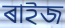
ৰাইজ